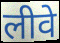
लीवे